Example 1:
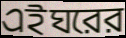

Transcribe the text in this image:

এইঘরের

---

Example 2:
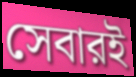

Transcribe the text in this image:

সেবারই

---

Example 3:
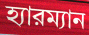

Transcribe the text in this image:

হ্যারম্যান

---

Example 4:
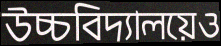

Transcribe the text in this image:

উচ্চবিদ্যালয়েও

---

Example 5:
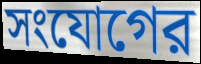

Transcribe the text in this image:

সংযোগের